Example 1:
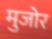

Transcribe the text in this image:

मुजोर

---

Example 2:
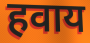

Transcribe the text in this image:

हवाय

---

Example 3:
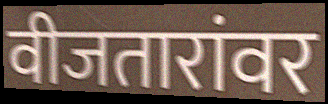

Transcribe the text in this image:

वीजतारांवर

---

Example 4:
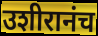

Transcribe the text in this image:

उशीरानंच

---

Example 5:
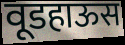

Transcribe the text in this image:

वूडहाऊस